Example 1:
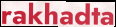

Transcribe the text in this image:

rakhadta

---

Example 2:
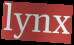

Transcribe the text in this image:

lynx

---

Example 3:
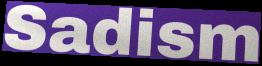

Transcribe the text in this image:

Sadism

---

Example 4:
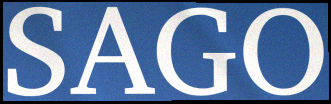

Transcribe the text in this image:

SAGO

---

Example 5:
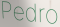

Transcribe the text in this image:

Pedro